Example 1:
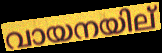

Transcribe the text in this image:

വായനയില്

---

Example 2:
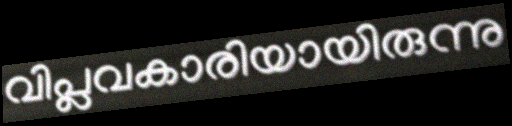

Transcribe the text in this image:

വിപ്ലവകാരിയായിരുന്നു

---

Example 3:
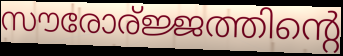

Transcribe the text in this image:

സൗരോര്ജ്ജത്തിന്റെ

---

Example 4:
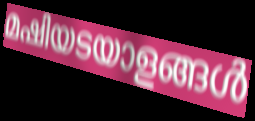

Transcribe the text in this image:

മഷിയടയാളങ്ങൾ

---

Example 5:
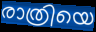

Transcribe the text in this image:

രാത്രിയെ